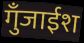
गुँजाईश